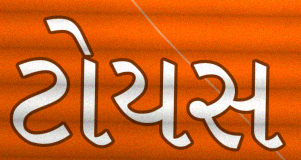
ટોયસ